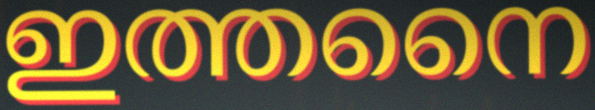
ഇത്തനൈ